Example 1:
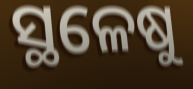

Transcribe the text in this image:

ସ୍ଥଳେଷୁ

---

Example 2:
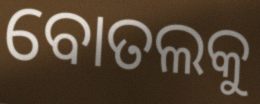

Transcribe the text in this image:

ବୋତଲକୁ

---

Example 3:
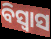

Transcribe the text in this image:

ବିସ୍ବାସ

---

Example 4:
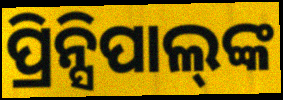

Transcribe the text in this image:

ପ୍ରିନ୍ସିପାଲ୍‍ଙ୍କ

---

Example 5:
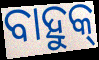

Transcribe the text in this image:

ବାହୁକ୍